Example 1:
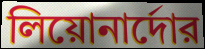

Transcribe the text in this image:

লিয়োনার্দোর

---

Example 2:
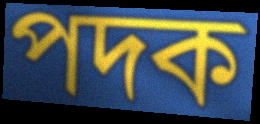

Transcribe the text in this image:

পদক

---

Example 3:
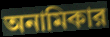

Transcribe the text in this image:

অনামিকার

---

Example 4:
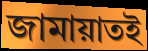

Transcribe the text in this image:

জামায়াতই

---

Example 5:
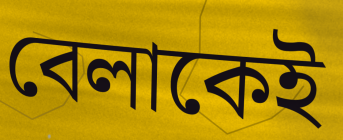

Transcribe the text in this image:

বেলাকেই